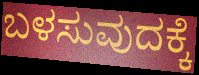
ಬಳಸುವುದಕ್ಕೆ